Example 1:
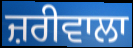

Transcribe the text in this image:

ਜ਼ਰੀਵਾਲਾ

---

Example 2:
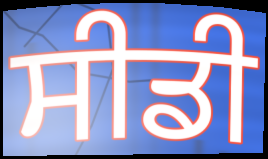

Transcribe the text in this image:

ਸੀਡੀ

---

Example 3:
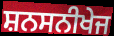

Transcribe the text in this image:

ਸ਼ਨਸਨੀਖੇਜ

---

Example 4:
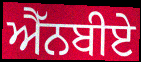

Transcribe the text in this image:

ਐੱਨਬੀਏ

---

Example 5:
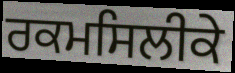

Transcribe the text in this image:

ਰਕਮਸਿਲੀਕੇ